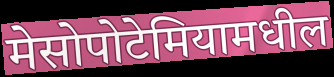
मेसोपोटेमियामधील